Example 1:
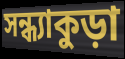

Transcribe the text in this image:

সন্ধ্যাকুড়া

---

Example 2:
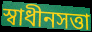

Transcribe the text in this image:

স্বাধীনসত্তা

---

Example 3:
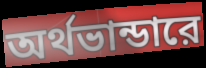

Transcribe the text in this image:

অর্থভান্ডারে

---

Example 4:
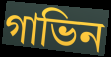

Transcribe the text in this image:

গাভিন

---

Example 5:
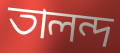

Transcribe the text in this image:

তালন্দ